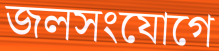
জলসংযোগে